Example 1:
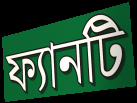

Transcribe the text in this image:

ফ্যানটি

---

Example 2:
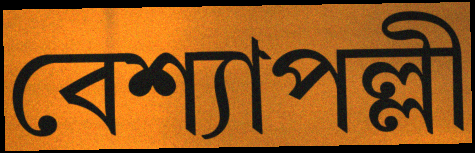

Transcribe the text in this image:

বেশ্যাপল্লী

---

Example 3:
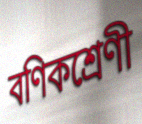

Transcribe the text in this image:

বণিকশ্রেণী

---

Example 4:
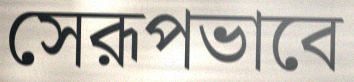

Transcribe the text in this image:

সেরূপভাবে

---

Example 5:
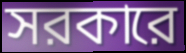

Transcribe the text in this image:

সরকারে